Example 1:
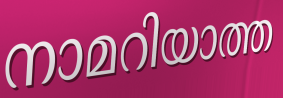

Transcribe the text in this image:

നാമറിയാത്ത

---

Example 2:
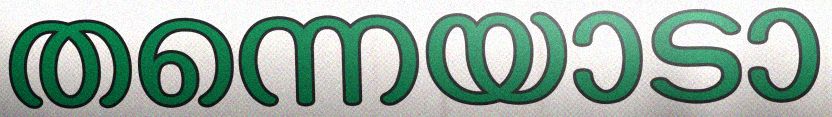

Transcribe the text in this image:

തന്നെയാടാ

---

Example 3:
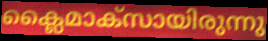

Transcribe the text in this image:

ക്ലൈമാക്സായിരുന്നു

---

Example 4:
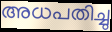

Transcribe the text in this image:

അധപതിച്ചു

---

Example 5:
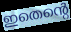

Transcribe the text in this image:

ഇതെന്റെ